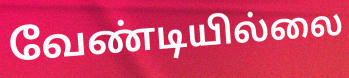
வேண்டியில்லை